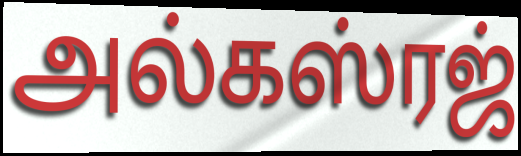
அல்கஸ்ரஜ்